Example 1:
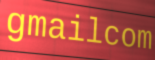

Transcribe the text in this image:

gmailcom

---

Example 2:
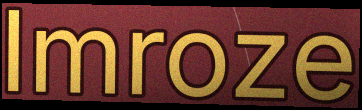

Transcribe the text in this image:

Imroze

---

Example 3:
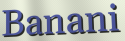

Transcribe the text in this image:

Banani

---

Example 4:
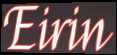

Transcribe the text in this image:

Eirin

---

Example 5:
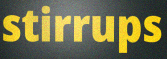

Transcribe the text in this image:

stirrups